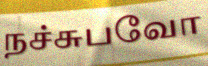
நச்சுபவோ